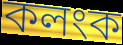
কলংক